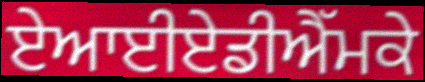
ਏਆਈਏਡੀਐੱਮਕੇ